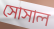
সোসাল